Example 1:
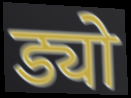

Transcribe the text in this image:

ड्यो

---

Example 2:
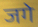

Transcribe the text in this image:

जगे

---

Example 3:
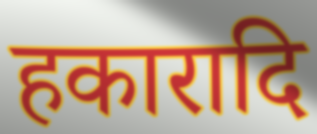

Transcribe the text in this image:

हकारादि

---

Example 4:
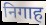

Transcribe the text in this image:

निगाह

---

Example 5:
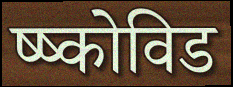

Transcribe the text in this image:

ष्ष्कोविड